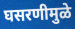
घसरणीमुळे